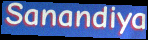
Sanandiya